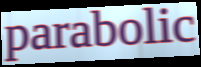
parabolic